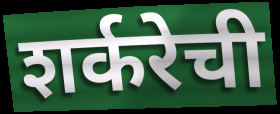
शर्करेची